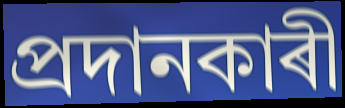
প্ৰদানকাৰী